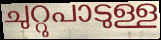
ചുറ്റുപാടുള്ള